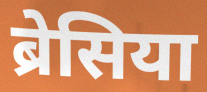
ब्रेसिया